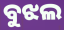
ବୁଝଲ